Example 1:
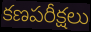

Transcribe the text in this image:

కణపరీక్షలు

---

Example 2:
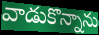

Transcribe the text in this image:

వాడుకొన్నాను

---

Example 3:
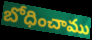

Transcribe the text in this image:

బోధించాము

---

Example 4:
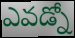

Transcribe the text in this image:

ఎవడ్నో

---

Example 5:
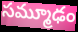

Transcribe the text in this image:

సమ్మూఢం